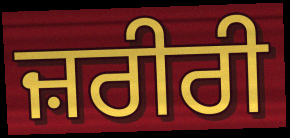
ਜ਼ਰੀਰੀ